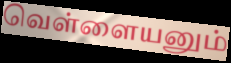
வெள்ளையனும்